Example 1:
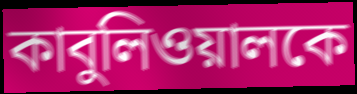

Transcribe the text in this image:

কাবুলিওয়ালকে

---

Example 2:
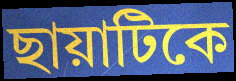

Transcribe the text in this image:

ছায়াটিকে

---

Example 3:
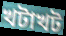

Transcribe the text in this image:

খটাখট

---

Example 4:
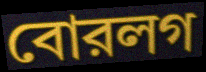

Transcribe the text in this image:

বোরলগ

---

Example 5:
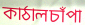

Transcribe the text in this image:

কাঠালচাঁপা